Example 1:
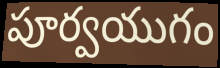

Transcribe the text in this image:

పూర్వయుగం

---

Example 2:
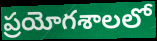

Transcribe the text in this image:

ప్రయోగశాలలో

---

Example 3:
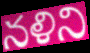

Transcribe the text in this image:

నళిని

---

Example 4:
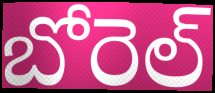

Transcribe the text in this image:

బోరెల్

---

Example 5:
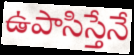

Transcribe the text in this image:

ఉపాసిస్తేనే